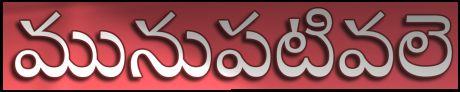
మునుపటివలె